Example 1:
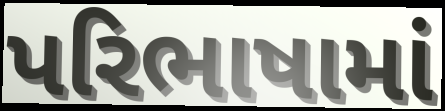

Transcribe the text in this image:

પરિભાષામાં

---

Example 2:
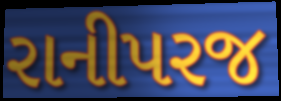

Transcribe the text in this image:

રાનીપરજ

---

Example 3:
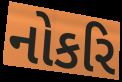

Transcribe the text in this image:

નોકરિ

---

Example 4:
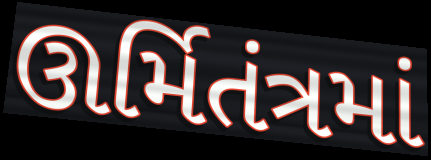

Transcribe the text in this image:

ઊર્મિતંત્રમાં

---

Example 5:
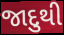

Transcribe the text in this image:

જાદુથી